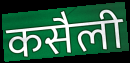
कसैली